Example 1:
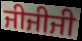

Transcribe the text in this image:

ਜੀਜੀਜੀ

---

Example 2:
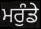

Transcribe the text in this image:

ਮਰੁੰਡੇ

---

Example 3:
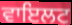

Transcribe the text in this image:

ਵਾਇਲਟ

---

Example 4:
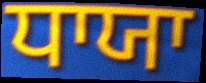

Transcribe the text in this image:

ਧਾਯਾ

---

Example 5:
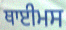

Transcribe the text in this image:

ਥਾਈਮਸ